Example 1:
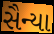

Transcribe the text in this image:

સૈન્યા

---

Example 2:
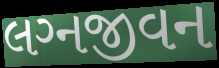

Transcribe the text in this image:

લગ્‍નજીવન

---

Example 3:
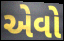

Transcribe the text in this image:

એેવો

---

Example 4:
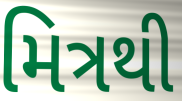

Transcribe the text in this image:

મિત્રથી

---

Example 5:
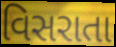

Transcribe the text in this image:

વિસરાતા